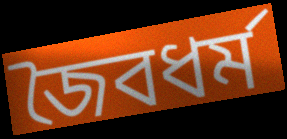
জৈবধর্ম